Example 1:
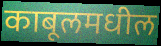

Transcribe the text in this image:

काबूलमधील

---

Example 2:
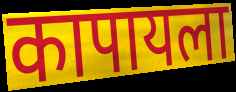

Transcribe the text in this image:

कापायला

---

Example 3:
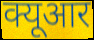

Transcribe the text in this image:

क्यूआर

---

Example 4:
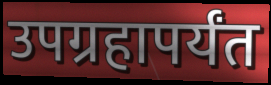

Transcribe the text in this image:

उपग्रहापर्यंत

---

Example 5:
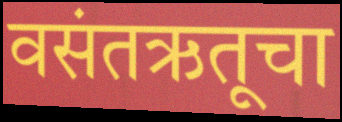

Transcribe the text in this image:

वसंतऋतूचा